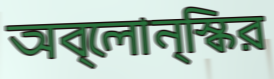
অব্‌লোন্‌স্কির